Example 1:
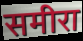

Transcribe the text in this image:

समीरा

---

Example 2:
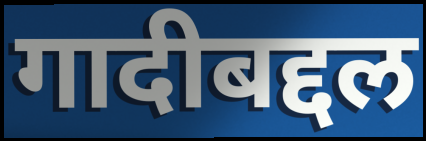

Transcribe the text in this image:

गादीबद्दल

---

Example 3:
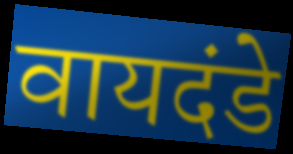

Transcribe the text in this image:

वायदंडे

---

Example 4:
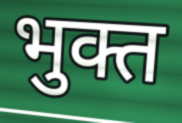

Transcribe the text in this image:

भुक्त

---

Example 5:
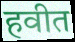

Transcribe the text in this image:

हवीत